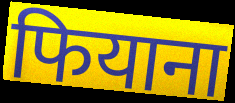
फियाना